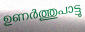
ഉണർത്തുപാട്ടു